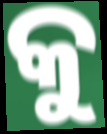
କୁ